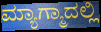
ಮ್ಯಾಗ್ಮಾದಲ್ಲಿ